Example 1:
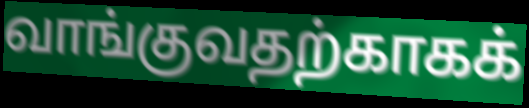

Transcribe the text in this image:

வாங்குவதற்காகக்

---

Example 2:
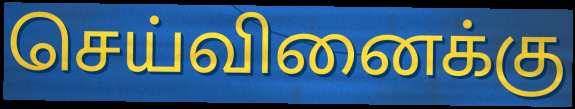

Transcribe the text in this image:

செய்வினைக்கு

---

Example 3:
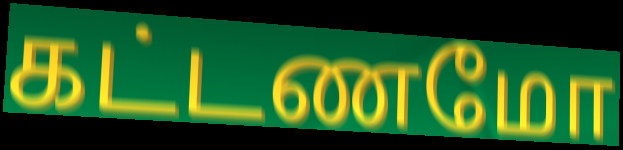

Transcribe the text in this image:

கட்டணமோ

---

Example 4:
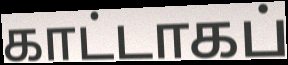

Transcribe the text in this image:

காட்டாகப்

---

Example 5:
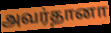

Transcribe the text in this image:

அவர்தானா